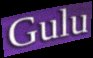
Gulu